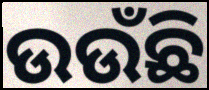
ଉଉଁଛି